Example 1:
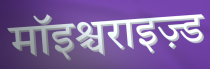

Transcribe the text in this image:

मॉइश्चराइज़्ड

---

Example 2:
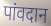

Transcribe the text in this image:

पांवदान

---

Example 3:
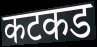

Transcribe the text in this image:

कटकड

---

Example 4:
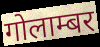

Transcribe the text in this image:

गोलाम्बर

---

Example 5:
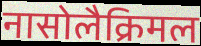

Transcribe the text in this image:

नासोलैक्रिमल